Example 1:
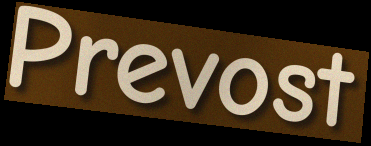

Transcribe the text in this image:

Prevost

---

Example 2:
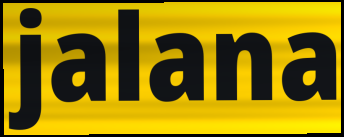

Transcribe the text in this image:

jalana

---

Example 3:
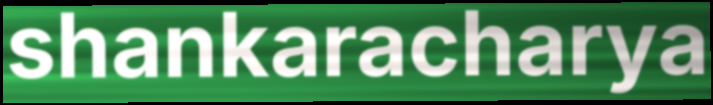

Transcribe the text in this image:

shankaracharya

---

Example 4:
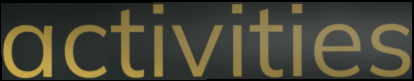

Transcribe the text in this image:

activities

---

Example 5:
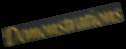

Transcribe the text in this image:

Demonstrations